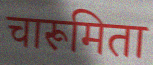
चारूमिता